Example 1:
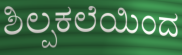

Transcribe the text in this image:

ಶಿಲ್ಪಕಲೆಯಿಂದ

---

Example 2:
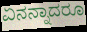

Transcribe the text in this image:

ಏನನ್ನಾದರೂ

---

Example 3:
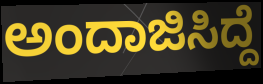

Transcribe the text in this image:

ಅಂದಾಜಿಸಿದ್ದೆ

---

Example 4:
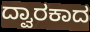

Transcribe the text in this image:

ದ್ವಾರಕಾದ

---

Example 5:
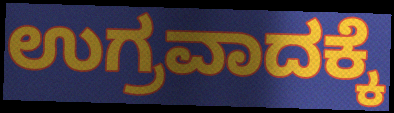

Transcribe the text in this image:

ಉಗ್ರವಾದಕ್ಕೆ